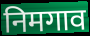
निमगाव